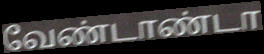
வேண்டாண்டா